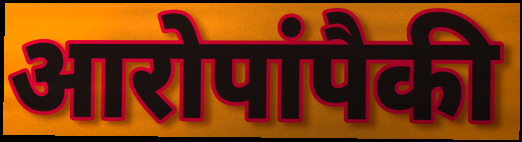
आरोपांपैकी